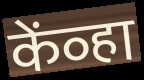
केंव्हा